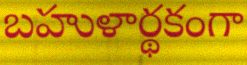
బహుళార్థకంగా